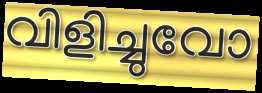
വിളിച്ചുവോ